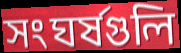
সংঘর্ষগুলি